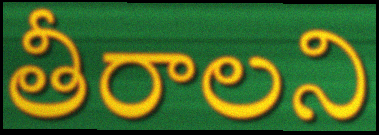
తీరాలని